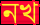
নখ